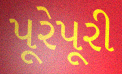
પૂરેપૂરી